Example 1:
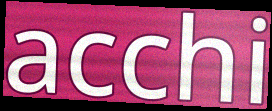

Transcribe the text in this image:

acchi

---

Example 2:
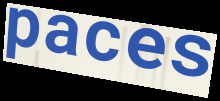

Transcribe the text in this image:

paces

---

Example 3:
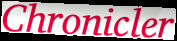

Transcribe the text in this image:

Chronicler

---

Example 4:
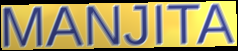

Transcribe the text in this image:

MANJITA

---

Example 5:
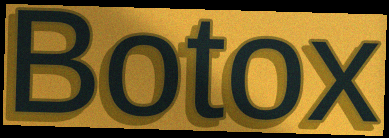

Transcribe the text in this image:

Botox